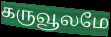
கருவூலமே